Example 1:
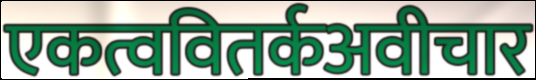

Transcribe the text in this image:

एकत्ववितर्कअवीचार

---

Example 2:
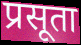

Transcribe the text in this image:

प्रसूता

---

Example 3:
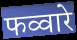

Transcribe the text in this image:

फव्वारे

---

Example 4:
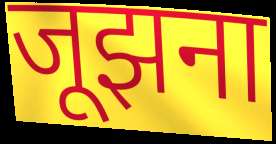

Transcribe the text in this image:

जूझना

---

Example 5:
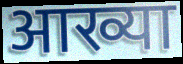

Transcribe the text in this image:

आख्या